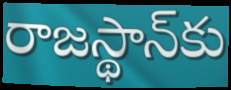
రాజస్థాన్‌కు